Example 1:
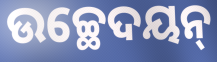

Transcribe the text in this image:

ଉଚ୍ଛେଦୟନ୍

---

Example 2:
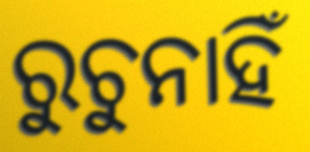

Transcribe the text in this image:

ରୁଚୁନାହିଁ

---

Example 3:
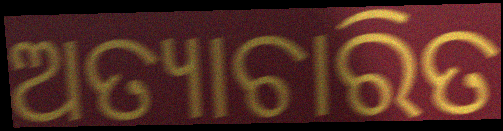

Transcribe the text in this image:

ଅତ୍ୟାଚାରିତ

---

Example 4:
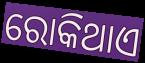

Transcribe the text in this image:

ରୋକିଥାଏ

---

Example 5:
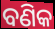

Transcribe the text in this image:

ବଣିକ